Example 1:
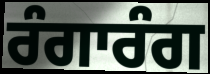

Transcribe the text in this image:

ਰੰਗਾਰੰਗ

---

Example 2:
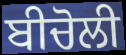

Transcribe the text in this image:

ਬੀਚੋਲੀ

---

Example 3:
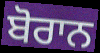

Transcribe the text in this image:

ਬੋਰਾਨ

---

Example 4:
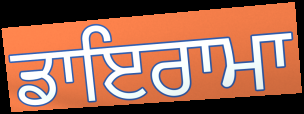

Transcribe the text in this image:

ਡਾਇਰਾਮਾ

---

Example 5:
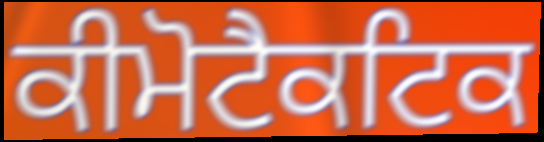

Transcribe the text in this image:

ਕੀਮੋਟੈਕਟਿਕ